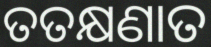
ତତକ୍ଷଣାତ